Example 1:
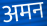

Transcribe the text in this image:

अमन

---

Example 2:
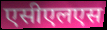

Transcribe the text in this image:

एसीएलएस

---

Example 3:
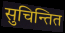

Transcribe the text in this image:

सुचिन्तित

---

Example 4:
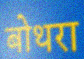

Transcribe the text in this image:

बोथरा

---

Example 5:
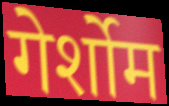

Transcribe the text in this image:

गेर्शोम